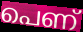
പെണ്